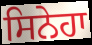
ਸਿਨੇਹਾ